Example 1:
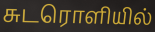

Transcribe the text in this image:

சுடரொளியில்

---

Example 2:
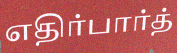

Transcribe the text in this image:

எதிர்பார்த்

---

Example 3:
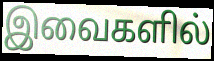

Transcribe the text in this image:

இவைகளில்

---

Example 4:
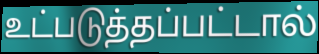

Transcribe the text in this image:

உட்படுத்தப்பட்டால்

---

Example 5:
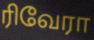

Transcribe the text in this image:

ரிவேரா